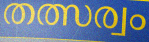
തത്സര്വം